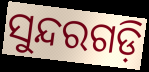
ସୁନ୍ଦରଗଡ଼ି